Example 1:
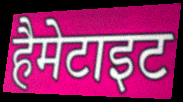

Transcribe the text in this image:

हैमेटाइट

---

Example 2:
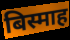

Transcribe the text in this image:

बिस्माह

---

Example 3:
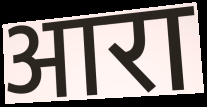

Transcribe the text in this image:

आरा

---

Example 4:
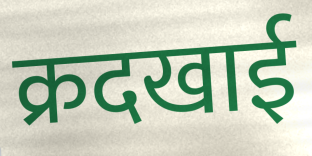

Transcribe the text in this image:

क्रदखाई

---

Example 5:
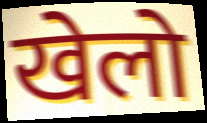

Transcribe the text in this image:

खेलो